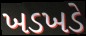
ખડખડે